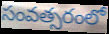
సంవత్సరంలో